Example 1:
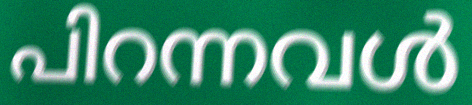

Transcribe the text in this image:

പിറന്നവൾ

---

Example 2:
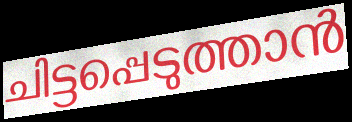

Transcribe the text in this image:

ചിട്ടപ്പെടുത്താൻ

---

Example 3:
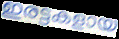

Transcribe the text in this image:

ഇരട്ടകളായ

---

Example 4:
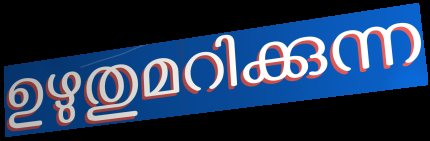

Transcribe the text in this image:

ഉഴുതുമറിക്കുന്ന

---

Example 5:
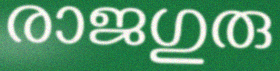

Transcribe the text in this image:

രാജഗുരു